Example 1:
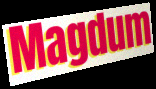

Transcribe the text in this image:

Magdum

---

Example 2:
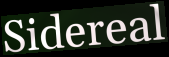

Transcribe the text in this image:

Sidereal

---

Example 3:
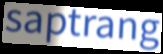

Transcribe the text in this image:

saptrang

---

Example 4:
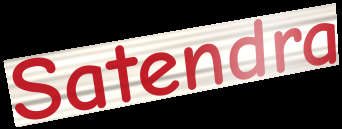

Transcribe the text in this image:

Satendra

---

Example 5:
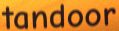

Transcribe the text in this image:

tandoor